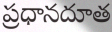
ప్రధానదూత